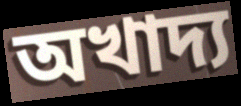
অখাদ্য